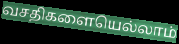
வசதிகளையெல்லாம்